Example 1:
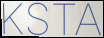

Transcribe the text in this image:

KSTA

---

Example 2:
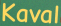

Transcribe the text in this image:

Kaval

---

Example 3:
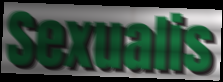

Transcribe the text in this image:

Sexualis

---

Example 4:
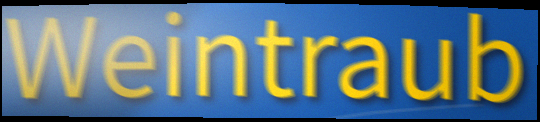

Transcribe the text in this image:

Weintraub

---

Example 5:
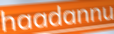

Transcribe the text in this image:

haadannu